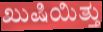
ಖುಷಿಯಿತ್ತು